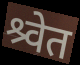
श्र्वेत